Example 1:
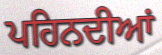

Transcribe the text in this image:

ਪਹਿਨਦੀਆਂ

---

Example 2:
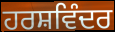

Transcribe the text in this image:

ਹਰਸ਼ਵਿੰਦਰ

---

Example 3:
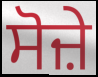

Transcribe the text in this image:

ਸੋਜ਼ੇ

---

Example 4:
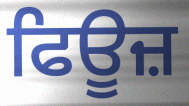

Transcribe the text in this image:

ਫਿਊਜ਼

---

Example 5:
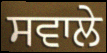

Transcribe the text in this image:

ਸਵਾਲੇ